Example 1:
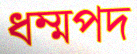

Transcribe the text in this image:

ধম্মপদ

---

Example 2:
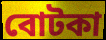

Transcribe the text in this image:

বোটকা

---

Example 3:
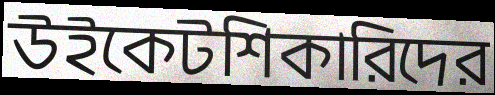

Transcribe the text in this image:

উইকেটশিকারিদের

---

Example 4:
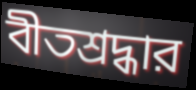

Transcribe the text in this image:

বীতশ্রদ্ধার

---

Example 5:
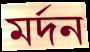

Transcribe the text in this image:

মর্দন